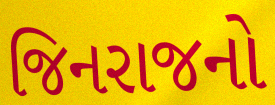
જિનરાજનો